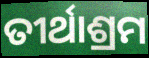
ତୀର୍ଥାଶ୍ରମ